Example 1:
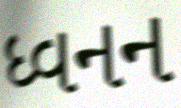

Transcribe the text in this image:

ધ્વનન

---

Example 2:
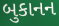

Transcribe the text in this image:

બુકાનન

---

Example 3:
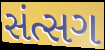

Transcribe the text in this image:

સંત્સગ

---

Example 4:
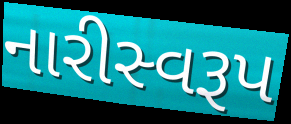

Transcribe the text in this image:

નારીસ્વરૂપ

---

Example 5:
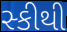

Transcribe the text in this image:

સ્કીથી